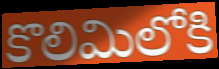
కొలిమిలోకి